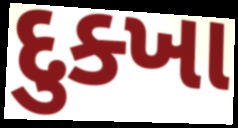
દુક્ખા